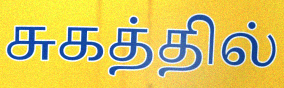
சுகத்தில்